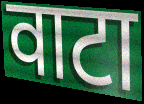
वाटा